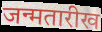
जन्मतारीख